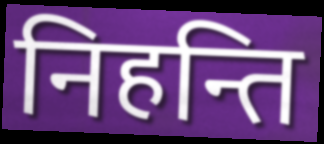
निहन्ति